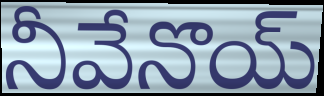
నీవేనొయ్